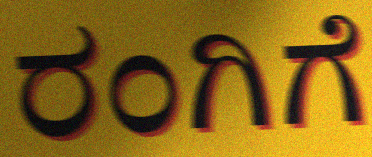
ರಂಗಿಗೆ